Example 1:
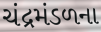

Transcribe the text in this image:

ચંદ્રમંડળના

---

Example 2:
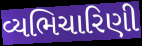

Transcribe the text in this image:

વ્યભિચારિણી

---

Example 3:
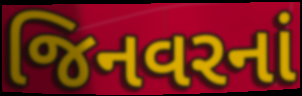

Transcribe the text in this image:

જિનવરનાં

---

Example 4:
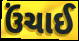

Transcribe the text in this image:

ઉંચાઈ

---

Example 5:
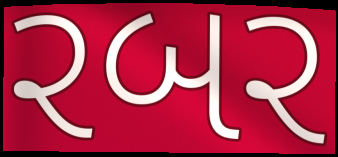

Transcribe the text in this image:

રબર